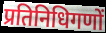
प्रतिनिधिगणों